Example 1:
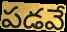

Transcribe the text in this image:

పడవే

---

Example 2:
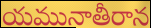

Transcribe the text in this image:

యమునాతీరాన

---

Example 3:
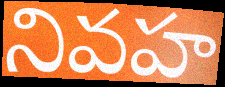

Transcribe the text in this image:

నివహ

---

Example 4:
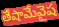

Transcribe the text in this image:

తేషామేవైష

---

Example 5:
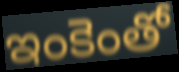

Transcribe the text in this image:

ఇంకెంతో